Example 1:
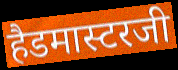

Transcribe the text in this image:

हैडमास्टरजी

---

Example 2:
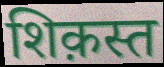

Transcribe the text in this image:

शिक़स्त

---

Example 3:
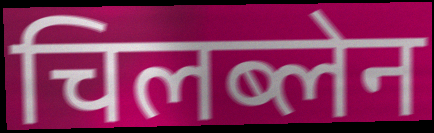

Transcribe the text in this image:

चिलब्लेन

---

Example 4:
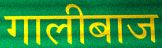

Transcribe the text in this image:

गालीबाज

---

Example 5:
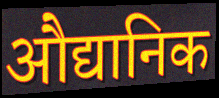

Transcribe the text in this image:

औद्यानिक